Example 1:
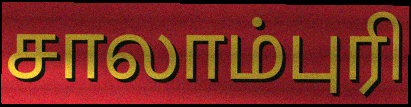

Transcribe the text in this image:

சாலாம்புரி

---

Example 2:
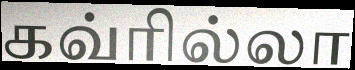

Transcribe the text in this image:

கவ்ரில்லா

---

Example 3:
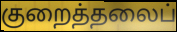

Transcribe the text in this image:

குறைத்தலைப்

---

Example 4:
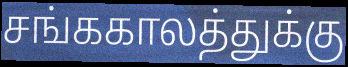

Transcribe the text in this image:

சங்ககாலத்துக்கு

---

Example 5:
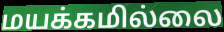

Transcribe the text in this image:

மயக்கமில்லை